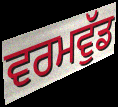
ਵਰਮਵੁੱਡ